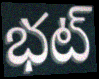
భట్